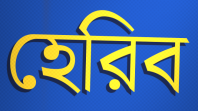
হেরিব